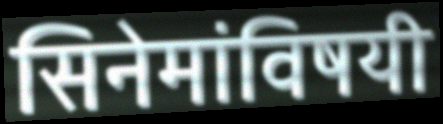
सिनेमांविषयी